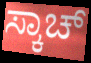
ಸ್ಕಾಚ್